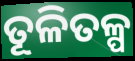
ତୂଳିତଳ୍ପ